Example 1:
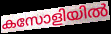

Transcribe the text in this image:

കസോളിയിൽ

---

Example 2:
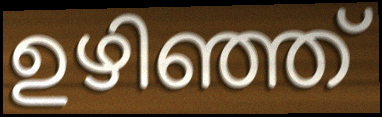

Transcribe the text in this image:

ഉഴിഞ്ഞ്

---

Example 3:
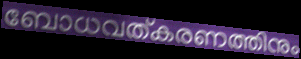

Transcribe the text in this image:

ബോധവത്കരണത്തിനും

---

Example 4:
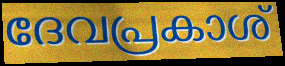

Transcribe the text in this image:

ദേവപ്രകാശ്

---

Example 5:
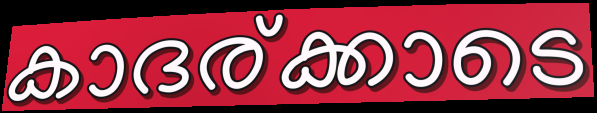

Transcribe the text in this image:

കാദര്ക്കാടെ